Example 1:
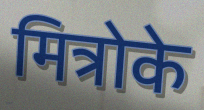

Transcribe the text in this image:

मित्रोके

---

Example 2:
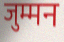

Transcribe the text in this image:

जुम्मन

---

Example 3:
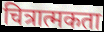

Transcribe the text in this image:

चित्रात्मकता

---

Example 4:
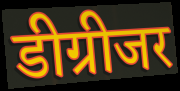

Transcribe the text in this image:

डीग्रीजर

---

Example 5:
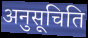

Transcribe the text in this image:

अनुसूचिति